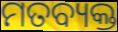
ମତବ୍ୟକ୍ତ